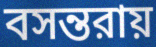
বসন্তরায়